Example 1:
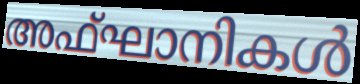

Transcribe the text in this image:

അഫ്ഘാനികൾ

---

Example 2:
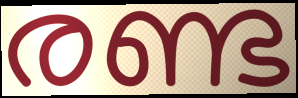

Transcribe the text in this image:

രണ്ട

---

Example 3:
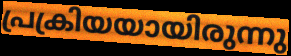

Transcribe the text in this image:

പ്രക്രിയയായിരുന്നു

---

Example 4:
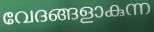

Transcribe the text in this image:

വേദങ്ങളാകുന്ന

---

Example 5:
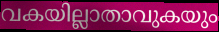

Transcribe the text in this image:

വകയില്ലാതാവുകയും